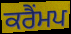
ਕਰੈਂਮਪ